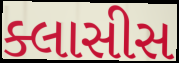
ક્લાસીસ